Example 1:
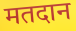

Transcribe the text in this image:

मतदान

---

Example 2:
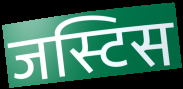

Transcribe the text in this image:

जस्टिस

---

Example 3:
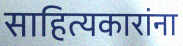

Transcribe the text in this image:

साहित्यकारांना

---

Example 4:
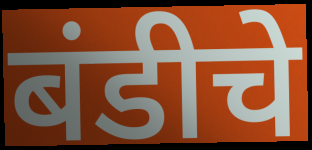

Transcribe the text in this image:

बंडीचे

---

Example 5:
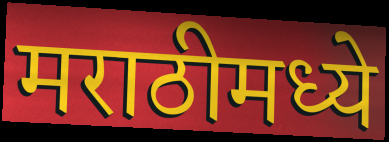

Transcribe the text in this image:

मराठीमध्ये